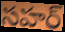
సహర్